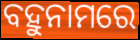
ବହୁନାମରେ